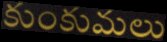
కుంకుమలు